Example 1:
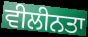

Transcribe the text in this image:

ਵੀਲੀਨਤਾ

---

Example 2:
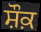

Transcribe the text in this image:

ਸ਼ੌਕ਼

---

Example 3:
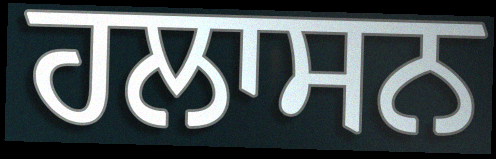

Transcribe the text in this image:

ਹਲਾਸਨ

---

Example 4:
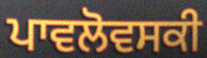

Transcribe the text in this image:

ਪਾਵਲੋਵਸਕੀ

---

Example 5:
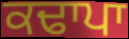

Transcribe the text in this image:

ਕਢਾਪਾ